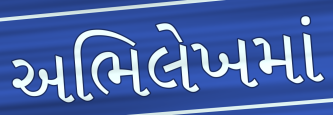
અભિલેખમાં